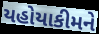
યહોયાકીમને